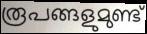
രൂപങ്ങളുമുണ്ട്